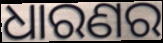
ଧାରଣର